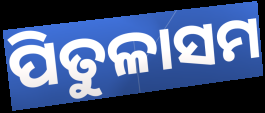
ପିତୁଳାସମ